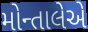
મોન્તાલેએ